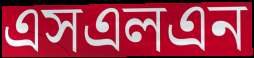
এসএলএন